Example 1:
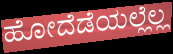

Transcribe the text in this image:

ಹೋದೆಡೆಯಲ್ಲೆಲ್ಲ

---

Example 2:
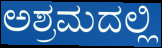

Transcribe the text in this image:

ಅಶ್ರಮದಲ್ಲಿ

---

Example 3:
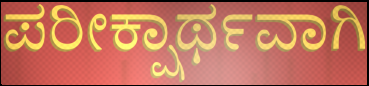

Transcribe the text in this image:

ಪರೀಕ್ಷಾರ್ಥವಾಗಿ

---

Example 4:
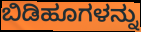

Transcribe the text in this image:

ಬಿಡಿಹೂಗಳನ್ನು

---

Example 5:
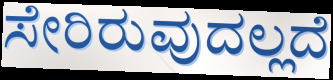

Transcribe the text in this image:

ಸೇರಿರುವುದಲ್ಲದೆ